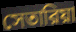
সেতারিয়া